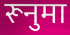
रूनुमा